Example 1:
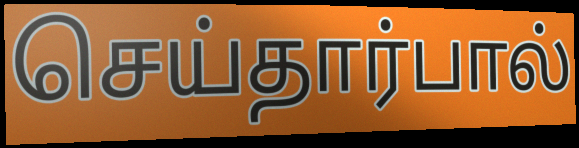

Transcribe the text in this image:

செய்தார்பால்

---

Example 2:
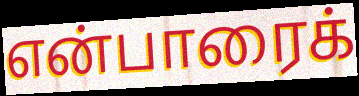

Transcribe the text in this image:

என்பாரைக்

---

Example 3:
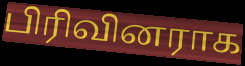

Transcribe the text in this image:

பிரிவினராக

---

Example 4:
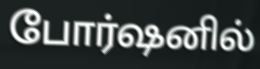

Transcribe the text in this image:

போர்ஷனில்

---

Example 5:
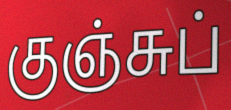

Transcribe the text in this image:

குஞ்சுப்